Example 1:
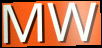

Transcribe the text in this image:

MW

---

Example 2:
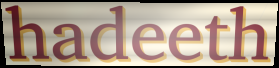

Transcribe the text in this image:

hadeeth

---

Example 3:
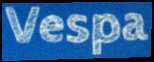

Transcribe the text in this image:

Vespa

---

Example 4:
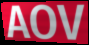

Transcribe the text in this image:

AOV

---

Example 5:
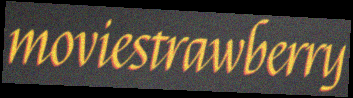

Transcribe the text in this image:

moviestrawberry